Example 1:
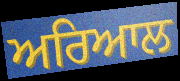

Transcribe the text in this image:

ਅਰਿਆਲ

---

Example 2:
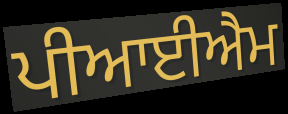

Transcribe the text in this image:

ਪੀਆਈਐਮ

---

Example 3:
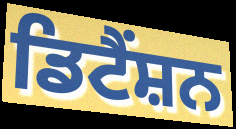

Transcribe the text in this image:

ਡਿਟੈਂਸ਼ਨ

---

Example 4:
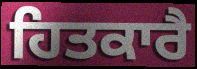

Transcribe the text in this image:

ਹਿਤਕਾਰੈ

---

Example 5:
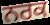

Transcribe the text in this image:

ਨਰਕ